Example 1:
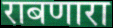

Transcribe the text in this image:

राबणारा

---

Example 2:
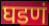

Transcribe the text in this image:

घडणं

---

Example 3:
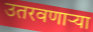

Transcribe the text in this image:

उतरवणाऱ्या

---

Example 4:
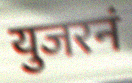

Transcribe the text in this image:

युजरनं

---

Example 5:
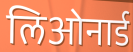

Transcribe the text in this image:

लिओनार्ड